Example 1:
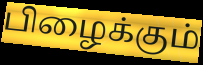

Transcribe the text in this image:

பிழைக்கும்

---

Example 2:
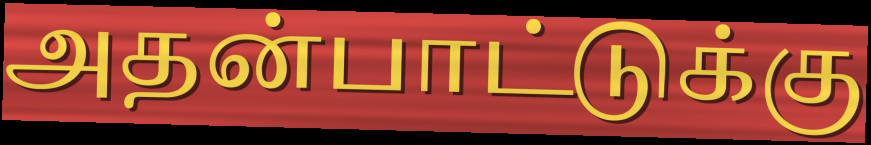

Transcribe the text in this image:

அதன்பாட்டுக்கு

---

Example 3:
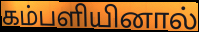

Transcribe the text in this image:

கம்பளியினால்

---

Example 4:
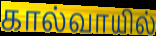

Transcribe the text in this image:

கால்வாயில்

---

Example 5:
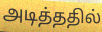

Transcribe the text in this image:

அடித்ததில்